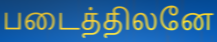
படைத்திலனே